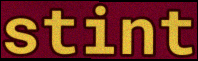
stint